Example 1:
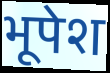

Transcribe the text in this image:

भूपेश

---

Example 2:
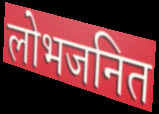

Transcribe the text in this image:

लोभजनित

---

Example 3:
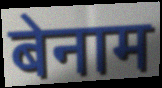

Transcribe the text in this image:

बेनाम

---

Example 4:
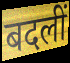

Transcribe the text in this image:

बदलीं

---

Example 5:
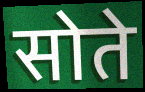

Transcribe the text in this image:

सोते